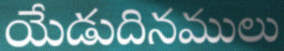
యేడుదినములు